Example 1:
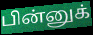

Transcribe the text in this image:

பின்னுக்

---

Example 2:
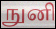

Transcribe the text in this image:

நுனி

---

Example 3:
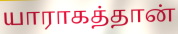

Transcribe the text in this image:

யாராகத்தான்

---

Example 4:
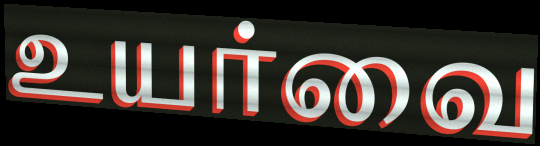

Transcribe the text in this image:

உயர்வை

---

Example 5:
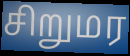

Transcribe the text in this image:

சிறுமர